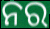
ନର